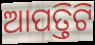
ଆପତ୍ତିଟି